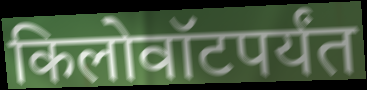
किलोवॉटपर्यंत